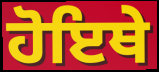
ਹੋਇਥੇ